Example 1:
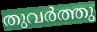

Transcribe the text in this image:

തുവർത്തു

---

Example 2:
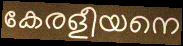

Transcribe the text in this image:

കേരളീയനെ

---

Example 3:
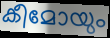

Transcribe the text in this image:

കീമോയും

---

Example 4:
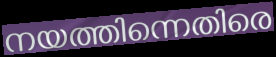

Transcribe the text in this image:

നയത്തിന്നെതിരെ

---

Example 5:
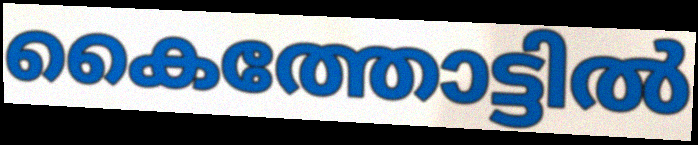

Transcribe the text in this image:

കൈത്തോട്ടിൽ